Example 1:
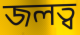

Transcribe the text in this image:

জলত্ব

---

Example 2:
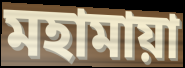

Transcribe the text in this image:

মহামায়া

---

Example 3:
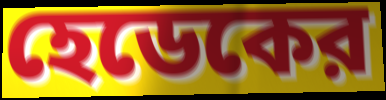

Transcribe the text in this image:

হেডেকের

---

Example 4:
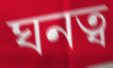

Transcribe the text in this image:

ঘনত্ব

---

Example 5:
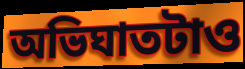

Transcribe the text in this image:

অভিঘাতটাও